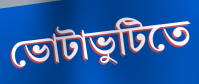
ভোটাভুটিতে